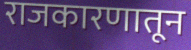
राजकारणातून